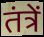
तंत्रें